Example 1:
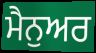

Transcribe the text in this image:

ਮੈਨੁਅਰ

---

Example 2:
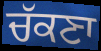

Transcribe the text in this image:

ਚੱਕਣਾ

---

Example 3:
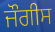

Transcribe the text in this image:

ਜੌਗੀਸ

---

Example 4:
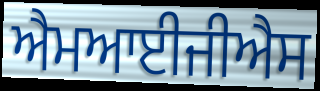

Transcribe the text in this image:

ਐਮਆਈਜੀਐਸ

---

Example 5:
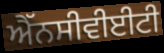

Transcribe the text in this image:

ਐੱਨਸੀਵੀਈਟੀ